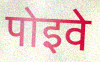
पोइवे